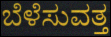
ಬೆಳೆಸುವತ್ತ